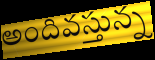
అందివస్తున్న